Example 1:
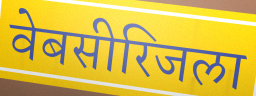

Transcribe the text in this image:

वेबसीरिजला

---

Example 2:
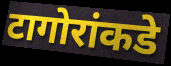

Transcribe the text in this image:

टागोरांकडे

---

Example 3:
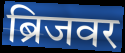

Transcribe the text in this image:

ब्रिजवर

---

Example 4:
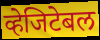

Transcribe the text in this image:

व्हेजिटेबल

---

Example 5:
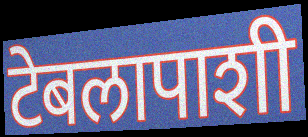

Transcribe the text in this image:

टेबलापाशी